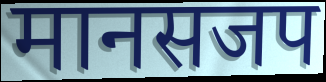
मानसजप